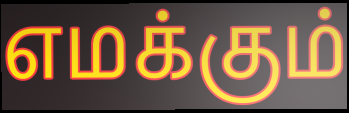
எமக்கும்